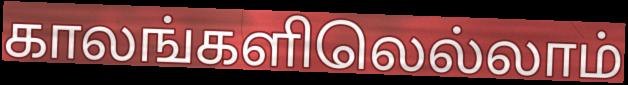
காலங்களிலெல்லாம்